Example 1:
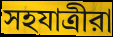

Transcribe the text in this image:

সহযাত্রীরা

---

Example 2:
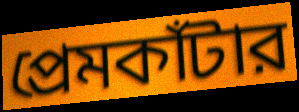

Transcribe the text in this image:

প্রেমকাঁটার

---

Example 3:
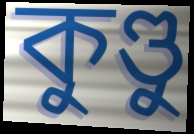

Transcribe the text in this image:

কুণ্ডু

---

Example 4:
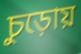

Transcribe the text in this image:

চুড়োয়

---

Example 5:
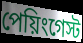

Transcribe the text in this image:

পেয়িংগেস্ট